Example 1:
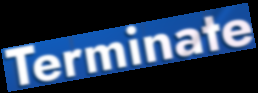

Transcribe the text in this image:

Terminate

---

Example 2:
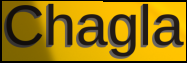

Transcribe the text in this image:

Chagla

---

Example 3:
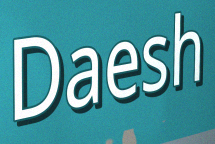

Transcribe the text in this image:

Daesh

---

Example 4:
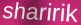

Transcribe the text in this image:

sharirik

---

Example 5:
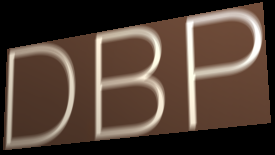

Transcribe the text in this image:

DBP